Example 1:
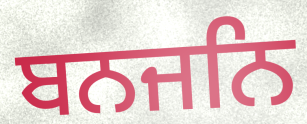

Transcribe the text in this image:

ਬਨਜਨਿ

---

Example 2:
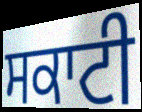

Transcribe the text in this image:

ਸਕਾਟੀ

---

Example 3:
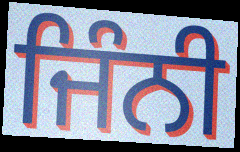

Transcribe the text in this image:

ਜਿੰਨੀ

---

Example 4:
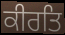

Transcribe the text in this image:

ਕੀਰਤਿ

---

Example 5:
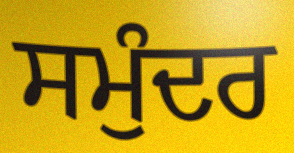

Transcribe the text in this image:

ਸਮੁੰਦਰ